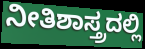
ನೀತಿಶಾಸ್ತ್ರದಲ್ಲಿ